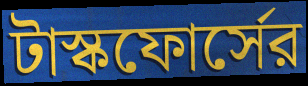
টাস্কফোর্সের